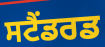
ਸਟੈਂਡਰਡ